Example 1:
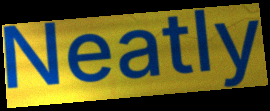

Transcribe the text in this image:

Neatly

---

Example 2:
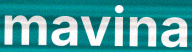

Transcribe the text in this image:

mavina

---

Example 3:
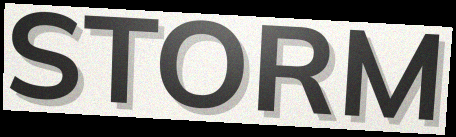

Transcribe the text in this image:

STORM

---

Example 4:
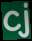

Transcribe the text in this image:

cj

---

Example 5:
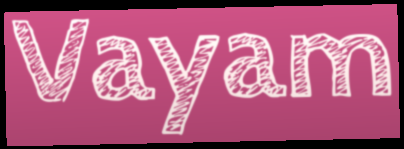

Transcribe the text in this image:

Vayam